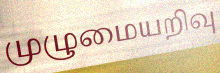
முழுமையறிவு